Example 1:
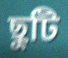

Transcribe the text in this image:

ছুটি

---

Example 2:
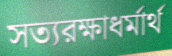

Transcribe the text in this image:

সত্যরক্ষাধর্মার্থ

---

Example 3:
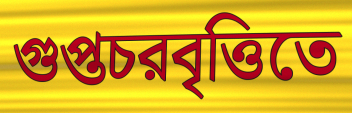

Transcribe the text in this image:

গুপ্তচরবৃত্তিতে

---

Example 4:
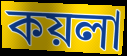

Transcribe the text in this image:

কয়লা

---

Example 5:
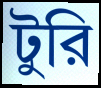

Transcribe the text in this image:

টুরি